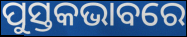
ପୁସ୍ତକଭାବରେ